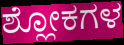
ಶ್ಲೋಕಗಳ